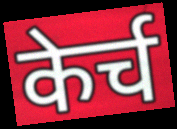
केर्च